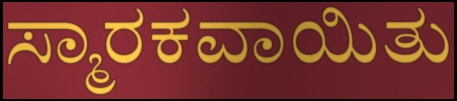
ಸ್ಮಾರಕವಾಯಿತು